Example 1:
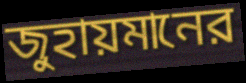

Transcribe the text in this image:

জুহায়মানের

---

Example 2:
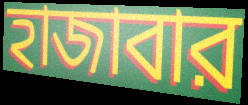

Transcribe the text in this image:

হাজাবার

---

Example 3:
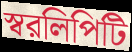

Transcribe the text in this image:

স্বরলিপিটি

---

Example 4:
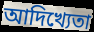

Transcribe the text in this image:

আদিখ্যেতা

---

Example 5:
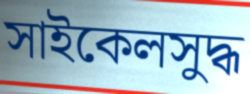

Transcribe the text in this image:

সাইকেলসুদ্ধ